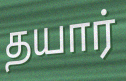
தயார்